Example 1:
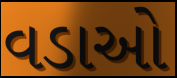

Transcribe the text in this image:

વડાઓ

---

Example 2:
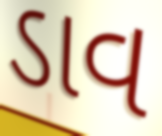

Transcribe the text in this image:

ડાવ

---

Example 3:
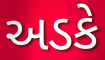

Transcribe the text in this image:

અડકે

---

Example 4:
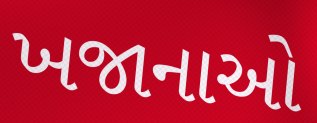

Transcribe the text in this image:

ખજાનાઓ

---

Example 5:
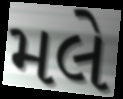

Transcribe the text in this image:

મલે